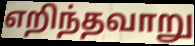
எறிந்தவாறு